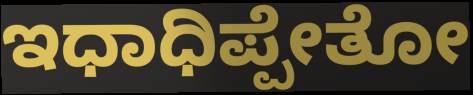
ಇಧಾಧಿಪ್ಪೇತೋ